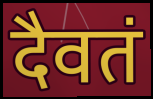
दैवतं